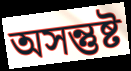
অসন্তুষ্ট